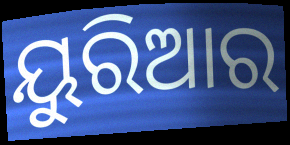
ୟୁରିଆର